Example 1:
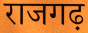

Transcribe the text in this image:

राजगढ़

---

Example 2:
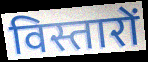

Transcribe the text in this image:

विस्तारों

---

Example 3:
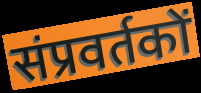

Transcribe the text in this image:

संप्रवर्तकों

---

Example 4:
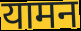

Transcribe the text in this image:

यामन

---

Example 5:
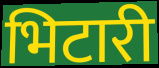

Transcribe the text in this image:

भिटारी